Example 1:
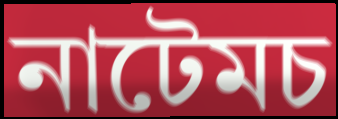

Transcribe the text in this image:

নাটেমচ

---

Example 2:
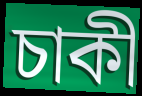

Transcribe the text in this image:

চাকী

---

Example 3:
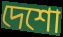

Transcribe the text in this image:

দেশো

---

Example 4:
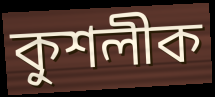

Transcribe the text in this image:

কুশলীক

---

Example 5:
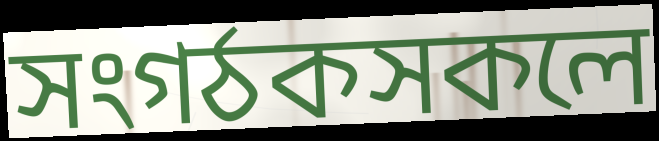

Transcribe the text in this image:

সংগঠকসকলে